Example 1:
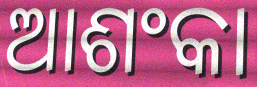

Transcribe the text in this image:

ଆଶଂକା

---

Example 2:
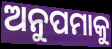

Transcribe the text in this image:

ଅନୁପମାକୁ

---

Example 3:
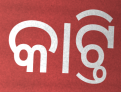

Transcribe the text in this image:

କାଟ୍ତି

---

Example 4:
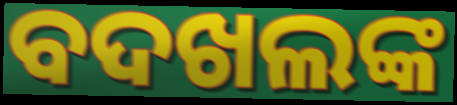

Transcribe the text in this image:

ବଦଖଲଙ୍କ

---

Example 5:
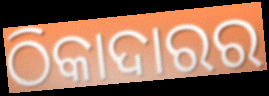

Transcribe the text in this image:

ଠିକାଦାରର